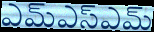
ఎమ్ఎస్ఎమ్